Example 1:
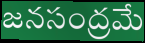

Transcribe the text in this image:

జనసంద్రమే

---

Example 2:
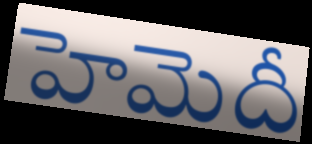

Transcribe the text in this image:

హెమెదీ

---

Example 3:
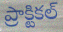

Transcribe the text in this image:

ప్రాక్టికల్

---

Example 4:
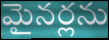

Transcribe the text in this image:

మైనర్లను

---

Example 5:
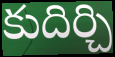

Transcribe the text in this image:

కుదిర్చి